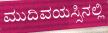
ಮುದಿವಯಸ್ಸಿನಲ್ಲಿ